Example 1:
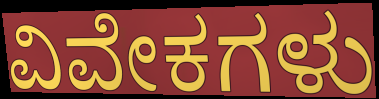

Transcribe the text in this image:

ವಿವೇಕಗಳು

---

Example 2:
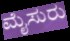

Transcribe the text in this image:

ಮೈಸುರು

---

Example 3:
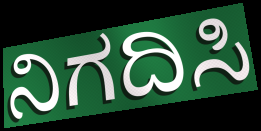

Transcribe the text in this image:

ನಿಗದಿಸಿ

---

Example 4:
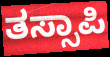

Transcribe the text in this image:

ತಸ್ಸಾಪಿ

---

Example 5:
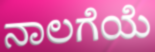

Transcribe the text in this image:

ನಾಲಗೆಯೆ